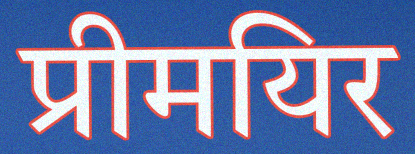
प्रीमयिर